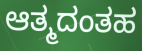
ಆತ್ಮದಂತಹ